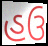
હઉ